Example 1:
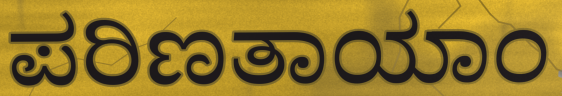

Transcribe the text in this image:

ಪರಿಣತಾಯಾಂ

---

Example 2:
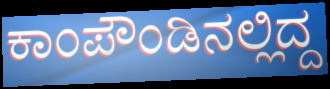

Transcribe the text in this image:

ಕಾಂಪೌಂಡಿನಲ್ಲಿದ್ದ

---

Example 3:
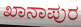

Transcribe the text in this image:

ಖಾನಾಪುರ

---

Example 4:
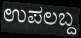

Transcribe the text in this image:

ಉಪಲಬ್ದ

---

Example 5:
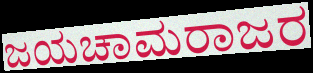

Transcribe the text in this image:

ಜಯಚಾಮರಾಜರ